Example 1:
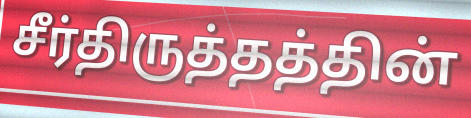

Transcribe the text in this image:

சீர்திருத்தத்தின்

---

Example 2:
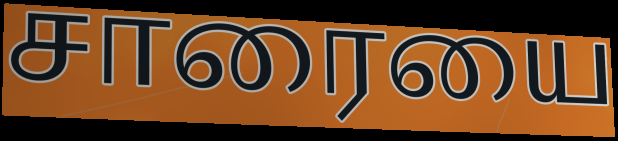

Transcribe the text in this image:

சாரையை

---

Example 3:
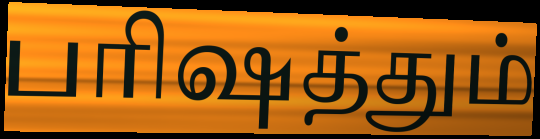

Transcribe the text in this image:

பரிஷத்தும்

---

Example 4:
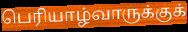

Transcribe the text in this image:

பெரியாழ்வாருக்குக்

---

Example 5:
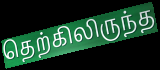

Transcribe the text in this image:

தெற்கிலிருந்த